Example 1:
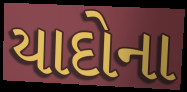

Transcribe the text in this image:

યાદોના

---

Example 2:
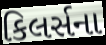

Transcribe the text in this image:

કિલર્સના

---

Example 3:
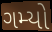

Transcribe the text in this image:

ગમ્યો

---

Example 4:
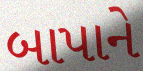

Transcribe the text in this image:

બાપાને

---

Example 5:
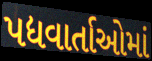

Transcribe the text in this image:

પદ્યવાર્તાઓમાં